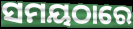
ସମୟଠାରେ